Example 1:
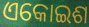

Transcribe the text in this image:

ଏକୋଇଶ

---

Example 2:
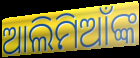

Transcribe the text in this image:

ଆଲିମିଆଁଙ୍କ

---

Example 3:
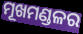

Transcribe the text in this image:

ମୂଖମଣ୍ଡଳର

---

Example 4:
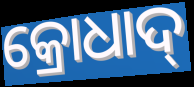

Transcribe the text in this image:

କ୍ରୋଧାଦ୍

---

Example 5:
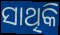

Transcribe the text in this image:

ସାଥିକି